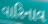
વારિનાવ